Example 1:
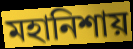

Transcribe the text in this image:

মহানিশায়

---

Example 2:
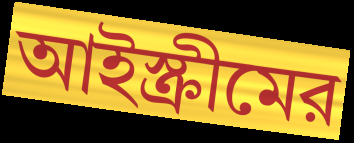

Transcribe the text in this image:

আইস্ক্রীমের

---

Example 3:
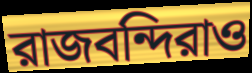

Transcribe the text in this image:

রাজবন্দিরাও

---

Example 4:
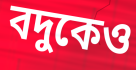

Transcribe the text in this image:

বদুকেও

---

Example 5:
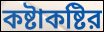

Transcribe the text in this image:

কষ্টাকষ্টির